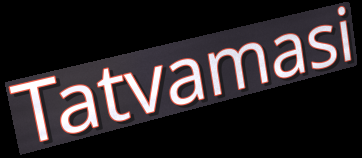
Tatvamasi